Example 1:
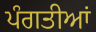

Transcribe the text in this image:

ਪੰਗਤੀਆਂ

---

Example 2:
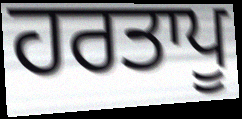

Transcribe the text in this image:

ਹਰਤਾਪੂ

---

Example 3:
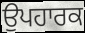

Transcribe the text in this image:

ਉਪਹਾਰਕ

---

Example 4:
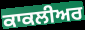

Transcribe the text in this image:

ਕਾਕਲੀਅਰ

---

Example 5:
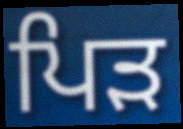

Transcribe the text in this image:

ਪਿੜ